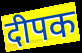
दीपक